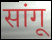
सांगू